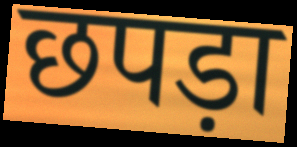
छपड़ा